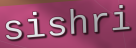
sishri